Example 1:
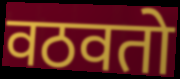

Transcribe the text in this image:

वठवतो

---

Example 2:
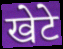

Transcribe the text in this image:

खेटे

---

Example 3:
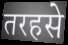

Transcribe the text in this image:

तरहसे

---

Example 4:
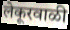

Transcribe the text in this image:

लेकूरवाळी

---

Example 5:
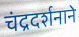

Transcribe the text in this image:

चंद्रदर्शनाने